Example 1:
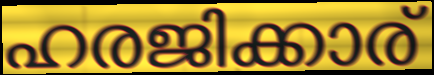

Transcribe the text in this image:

ഹരജിക്കാര്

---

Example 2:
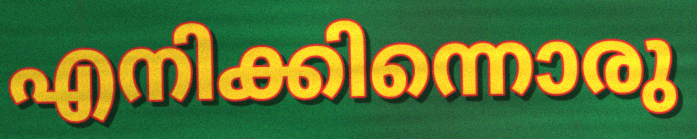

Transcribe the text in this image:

എനിക്കിന്നൊരു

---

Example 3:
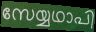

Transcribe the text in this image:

സേയ്യഥാപി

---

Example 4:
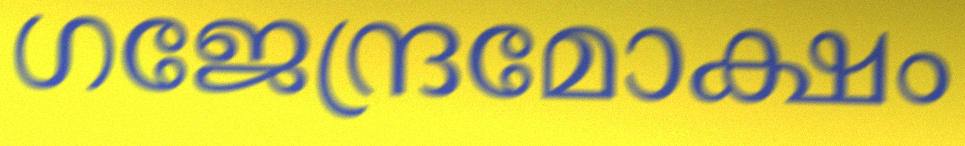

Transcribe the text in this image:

ഗജേന്ദ്രമോക്ഷം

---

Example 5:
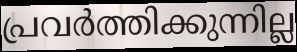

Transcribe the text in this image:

പ്രവർത്തിക്കുന്നില്ല